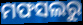
ମଫସଲରୁ